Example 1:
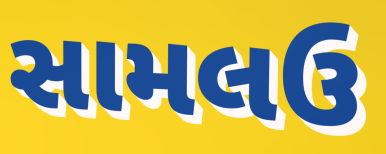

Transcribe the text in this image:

સામલઉ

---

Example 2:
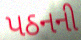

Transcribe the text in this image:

પઠનની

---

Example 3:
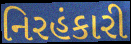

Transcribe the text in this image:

નિરહંકારી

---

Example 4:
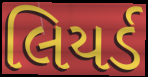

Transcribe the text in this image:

લિયર્ડ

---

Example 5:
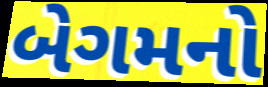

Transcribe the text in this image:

બેગમનો